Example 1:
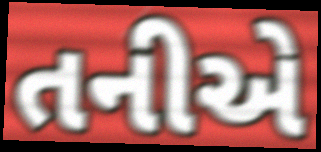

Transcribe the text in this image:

તનીએ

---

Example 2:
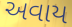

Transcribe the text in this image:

અવાય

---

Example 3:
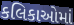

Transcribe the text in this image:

કલિકાઓમાં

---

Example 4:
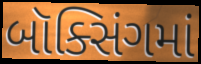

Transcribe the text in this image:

બૉક્સિંગમાં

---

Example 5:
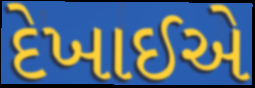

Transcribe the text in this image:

દેખાઈએ